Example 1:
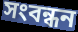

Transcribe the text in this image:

সংবন্ধন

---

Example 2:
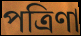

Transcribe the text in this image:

পত্রিণা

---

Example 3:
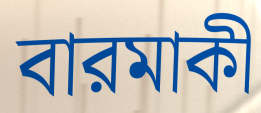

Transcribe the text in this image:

বারমাকী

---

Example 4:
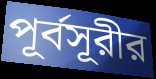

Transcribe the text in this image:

পূর্বসূরীর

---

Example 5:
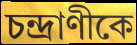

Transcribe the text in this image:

চন্দ্রাণীকে